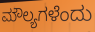
ಮೌಲ್ಯಗಳೆಂದು